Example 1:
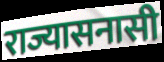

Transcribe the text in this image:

राज्यासनासी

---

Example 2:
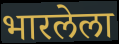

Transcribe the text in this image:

भारलेला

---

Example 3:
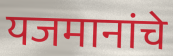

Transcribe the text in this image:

यजमानांचे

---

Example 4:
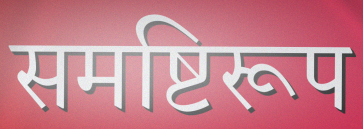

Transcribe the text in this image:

समष्टिरूप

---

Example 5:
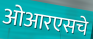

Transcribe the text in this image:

ओआरएसचे